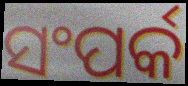
ସଂପର୍କ